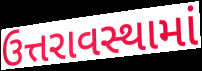
ઉત્તરાવસ્થામાં